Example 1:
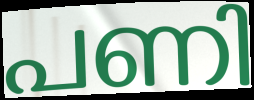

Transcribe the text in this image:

പണി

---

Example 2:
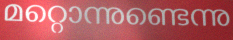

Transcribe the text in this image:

മറ്റൊന്നുണ്ടെന്നു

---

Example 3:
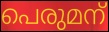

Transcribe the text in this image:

പെരുമന്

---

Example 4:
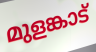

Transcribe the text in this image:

മുളങ്കാട്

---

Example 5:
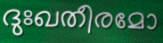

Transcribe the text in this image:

ദുഃഖതീരമോ